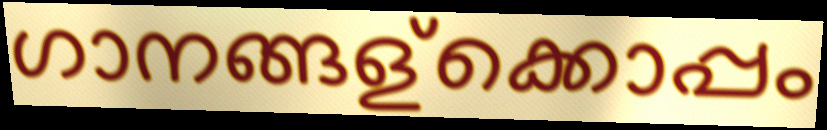
ഗാനങ്ങള്ക്കൊപ്പം